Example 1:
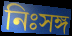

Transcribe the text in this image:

নিঃসঙ্গ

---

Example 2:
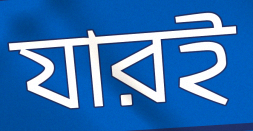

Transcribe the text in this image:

যারই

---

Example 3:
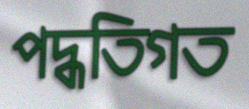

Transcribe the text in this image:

পদ্ধতিগত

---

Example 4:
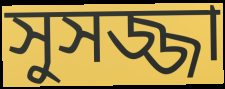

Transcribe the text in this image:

সুসজ্জা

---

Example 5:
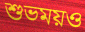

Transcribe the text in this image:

শুভময়ও